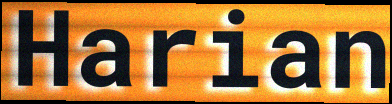
Harian